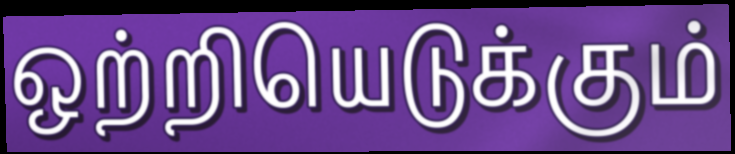
ஒற்றியெடுக்கும்